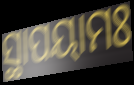
ସ୍ଥାପୟାମଃ